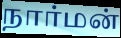
நார்மன்